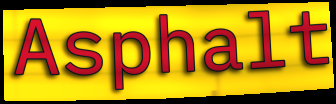
Asphalt